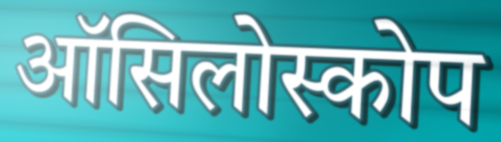
ऑसिलोस्कोप